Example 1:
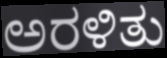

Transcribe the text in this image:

ಅರಳಿತು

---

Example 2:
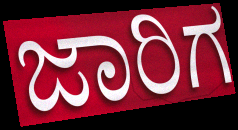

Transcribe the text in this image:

ಜಾರಿಗ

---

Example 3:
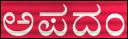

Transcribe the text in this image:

ಅಪದಂ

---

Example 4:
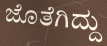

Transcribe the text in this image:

ಜೊತೆಗಿದ್ದು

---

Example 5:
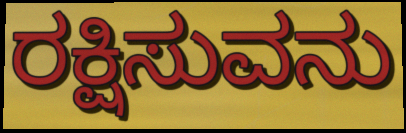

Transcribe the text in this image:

ರಕ್ಷಿಸುವನು